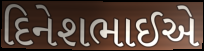
દિનેશભાઈએ